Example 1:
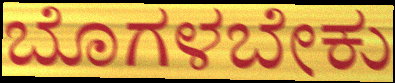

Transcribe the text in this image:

ಬೊಗಳಬೇಕು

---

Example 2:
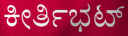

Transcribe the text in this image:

ಕೀರ್ತಿಭಟ್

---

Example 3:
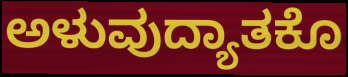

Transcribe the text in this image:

ಅಳುವುದ್ಯಾತಕೊ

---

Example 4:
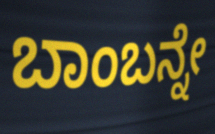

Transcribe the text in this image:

ಬಾಂಬನ್ನೇ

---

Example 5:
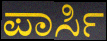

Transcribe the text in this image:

ಪಾರ್ಸಿ